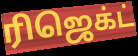
ரிஜெக்ட்